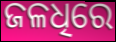
ଜଳଧିରେ